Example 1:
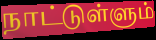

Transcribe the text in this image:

நாட்டுள்ளும்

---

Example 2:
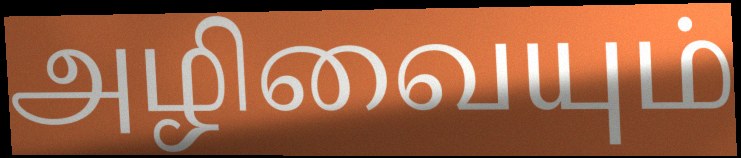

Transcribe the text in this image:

அழிவையும்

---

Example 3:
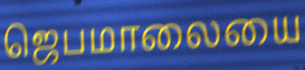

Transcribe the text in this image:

ஜெபமாலையை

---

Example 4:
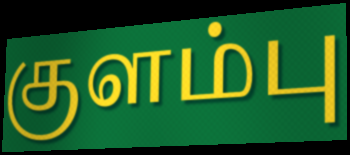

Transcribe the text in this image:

குளம்பு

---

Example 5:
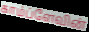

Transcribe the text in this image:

காம்ப்ளேவின்